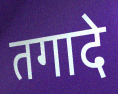
तगादे